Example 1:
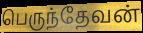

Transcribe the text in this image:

பெருந்தேவன்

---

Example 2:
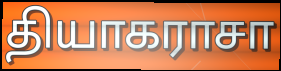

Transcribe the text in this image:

தியாகராசா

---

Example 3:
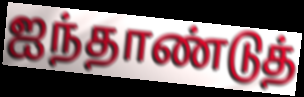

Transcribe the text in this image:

ஐந்தாண்டுத்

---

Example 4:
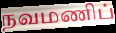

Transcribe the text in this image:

நவமணிப்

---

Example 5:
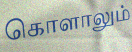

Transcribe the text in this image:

கொளாலும்